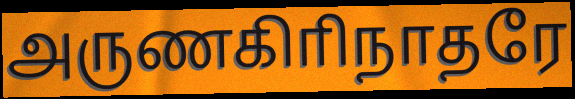
அருணகிரிநாதரே